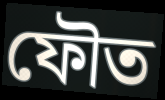
ফৌত